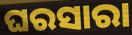
ଘରସାରା